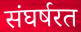
संघर्षरत